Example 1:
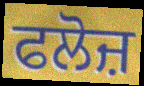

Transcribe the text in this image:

ਫਲੋਜ਼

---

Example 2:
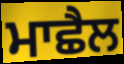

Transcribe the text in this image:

ਮਾਛੈਲ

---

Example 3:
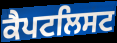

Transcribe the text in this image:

ਕੈਪਟਲਿਸਟ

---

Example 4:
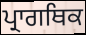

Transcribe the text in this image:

ਪ੍ਰਾਗਥਿਕ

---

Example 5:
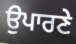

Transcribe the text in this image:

ਉਪਾਰਣੇ